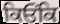
ਕਿਓਂਕਿ